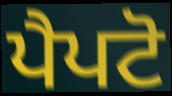
ਪੈਪਟੋ